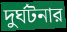
দুর্ঘটনার